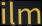
ilm